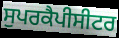
ਸੁਪਰਕੈਪੀਸੀਟਰ